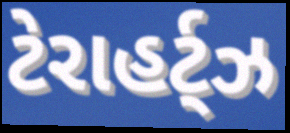
ટેરાહર્ટ્ઝ